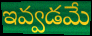
ఇవ్వడమే